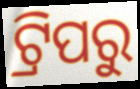
ଟ୍ରିପରୁ